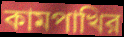
কামপাখির